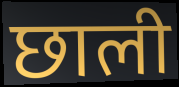
छाली